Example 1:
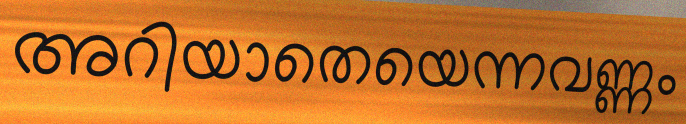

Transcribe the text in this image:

അറിയാതെയെന്നവണ്ണം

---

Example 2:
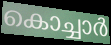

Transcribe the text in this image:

കൊച്ചാർ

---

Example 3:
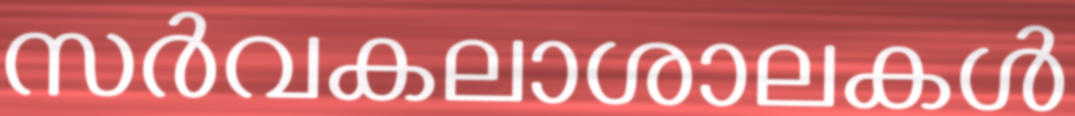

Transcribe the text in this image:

സർവകലാശാലകൾ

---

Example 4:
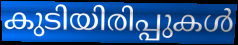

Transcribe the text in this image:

കുടിയിരിപ്പുകൾ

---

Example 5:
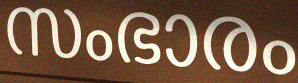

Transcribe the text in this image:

സംഭാരം